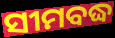
ସୀମବଦ୍ଧ